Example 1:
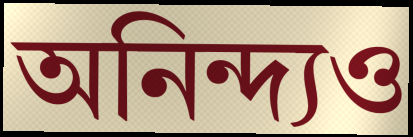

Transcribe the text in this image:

অনিন্দ্যও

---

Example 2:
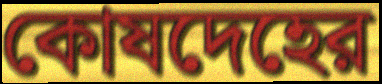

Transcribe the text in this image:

কোষদেহের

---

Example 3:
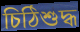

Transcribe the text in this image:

চিঠিশুদ্ধ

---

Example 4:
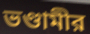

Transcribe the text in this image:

ভণ্ডামীর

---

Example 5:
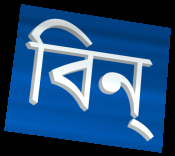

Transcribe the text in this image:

বিন্